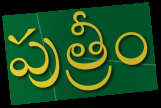
పుత్రీం